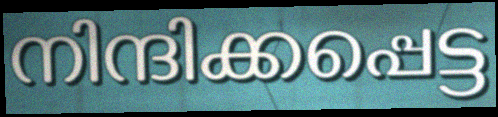
നിന്ദിക്കപ്പെട്ട